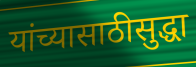
यांच्यासाठीसुद्धा